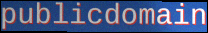
publicdomain